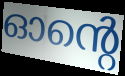
ഓന്റെ